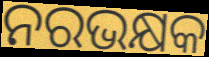
ନରଭକ୍ଷକ